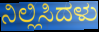
ನಿಲ್ಲಿಸಿದಳು